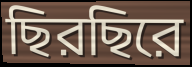
ছিরছিরে